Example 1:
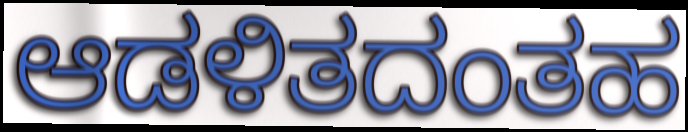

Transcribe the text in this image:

ಆಡಳಿತದಂತಹ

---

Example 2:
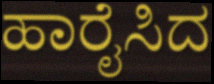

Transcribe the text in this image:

ಹಾರೈಸಿದ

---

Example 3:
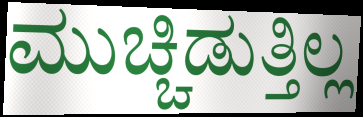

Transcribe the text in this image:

ಮುಚ್ಚಿಡುತ್ತಿಲ್ಲ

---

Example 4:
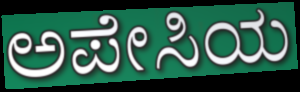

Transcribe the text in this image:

ಅಪೇಸಿಯ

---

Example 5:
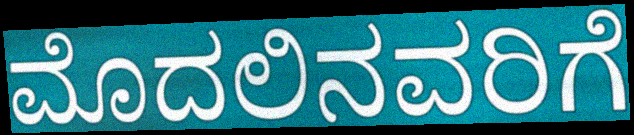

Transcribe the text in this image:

ಮೊದಲಿನವರಿಗೆ